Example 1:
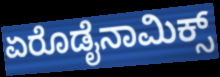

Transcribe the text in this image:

ಏರೊಡೈನಾಮಿಕ್ಸ್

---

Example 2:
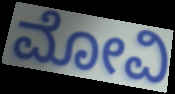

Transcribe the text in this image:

ಮೋವಿ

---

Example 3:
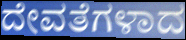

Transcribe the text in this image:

ದೇವತೆಗಳಾದ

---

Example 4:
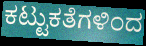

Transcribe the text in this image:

ಕಟ್ಟುಕತೆಗಳಿಂದ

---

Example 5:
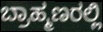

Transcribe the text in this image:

ಬ್ರಾಹ್ಮಣರಲ್ಲಿ